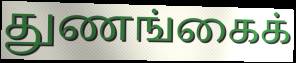
துணங்கைக்